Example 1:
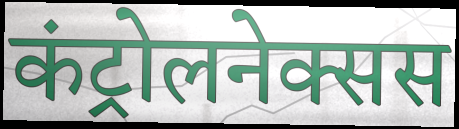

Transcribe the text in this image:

कंट्रोलनेक्सस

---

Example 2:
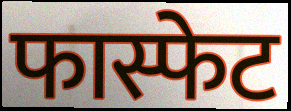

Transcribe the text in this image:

फास्फेट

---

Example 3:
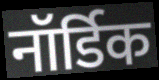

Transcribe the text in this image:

नॉर्डिक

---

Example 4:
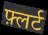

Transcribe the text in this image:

फ़्लर्ट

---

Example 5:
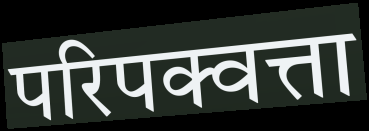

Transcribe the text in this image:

परिपक्वत्ता